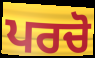
ਪਰਚੋ